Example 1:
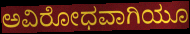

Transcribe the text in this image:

ಅವಿರೋಧವಾಗಿಯೂ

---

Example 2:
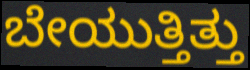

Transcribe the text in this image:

ಬೇಯುತ್ತಿತ್ತು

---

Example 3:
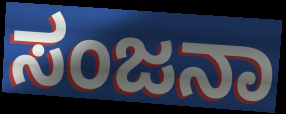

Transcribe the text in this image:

ಸಂಜನಾ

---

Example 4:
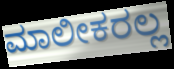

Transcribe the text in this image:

ಮಾಲೀಕರಲ್ಲ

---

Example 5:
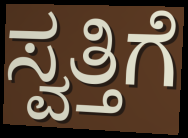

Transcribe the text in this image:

ಸ್ವತ್ತಿಗೆ